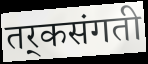
तर्कसंगती